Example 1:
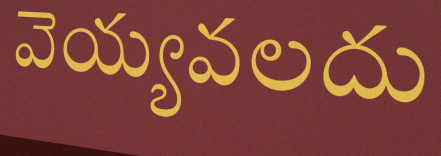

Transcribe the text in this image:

వెయ్యవలదు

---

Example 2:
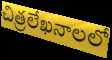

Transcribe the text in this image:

చిత్రలేఖనాలలో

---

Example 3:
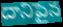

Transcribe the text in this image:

దానిపైన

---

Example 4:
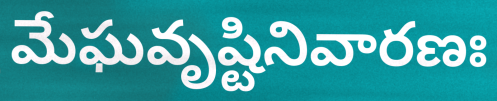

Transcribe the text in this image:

మేఘవృష్టినివారణః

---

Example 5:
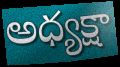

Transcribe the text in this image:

అధ్యక్షా